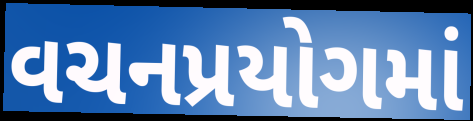
વચનપ્રયોગમાં